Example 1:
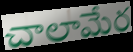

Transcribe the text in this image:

చాలామేర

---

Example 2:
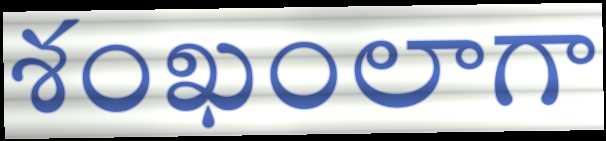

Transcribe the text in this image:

శంఖంలాగా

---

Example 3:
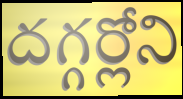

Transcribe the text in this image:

దగ్గర్లోని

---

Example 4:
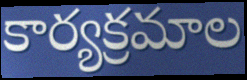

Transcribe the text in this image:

కార్యక్రమాల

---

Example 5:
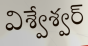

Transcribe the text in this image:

విశ్వేశ్వర్